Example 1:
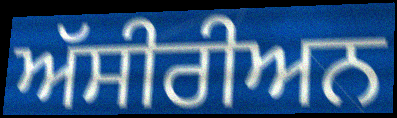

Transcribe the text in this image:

ਅੱਸੀਰੀਅਨ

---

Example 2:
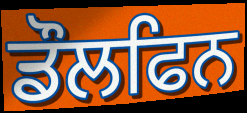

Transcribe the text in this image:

ਡੌਲਫਿਨ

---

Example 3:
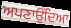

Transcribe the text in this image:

ਅਪਣਾਉਂਦਿਆ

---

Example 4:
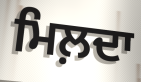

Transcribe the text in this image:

ਮਿਲ਼ਦਾ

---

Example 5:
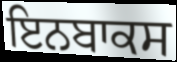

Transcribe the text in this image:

ਇਨਬਾਕਸ